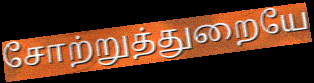
சோற்றுத்துறையே